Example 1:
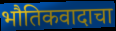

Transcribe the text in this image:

भौतिकवादाचा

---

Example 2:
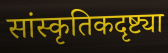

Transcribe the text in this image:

सांस्कृतिकदृष्ट्या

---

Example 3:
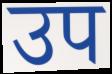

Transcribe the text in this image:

उप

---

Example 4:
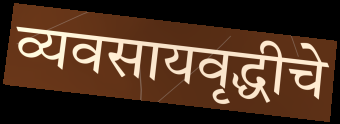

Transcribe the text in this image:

व्यवसायवृद्धीचे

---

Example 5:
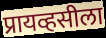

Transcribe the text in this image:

प्रायव्हसीला